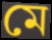
মে